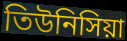
তিউনিসিয়া